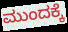
ಮುಂದಕ್ಕೆ